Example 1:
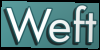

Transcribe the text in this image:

Weft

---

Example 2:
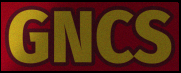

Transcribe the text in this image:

GNCS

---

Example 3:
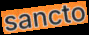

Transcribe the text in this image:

sancto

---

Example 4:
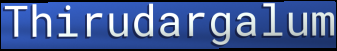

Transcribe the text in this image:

Thirudargalum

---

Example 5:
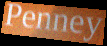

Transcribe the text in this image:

Penney